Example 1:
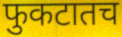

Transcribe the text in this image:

फुकटातच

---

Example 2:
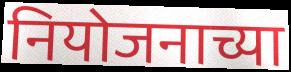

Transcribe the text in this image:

नियोजनाच्या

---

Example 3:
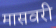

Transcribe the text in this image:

मासवरी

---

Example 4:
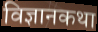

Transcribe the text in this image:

विज्ञानकथा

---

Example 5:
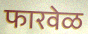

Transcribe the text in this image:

फारवेळ